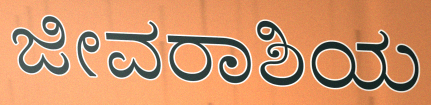
ಜೀವರಾಶಿಯ